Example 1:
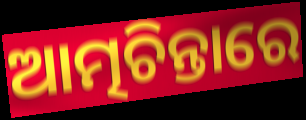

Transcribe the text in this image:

ଆତ୍ମଚିନ୍ତାରେ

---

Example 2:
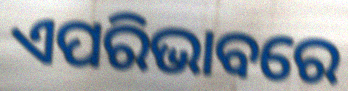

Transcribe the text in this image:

ଏପରିଭାବରେ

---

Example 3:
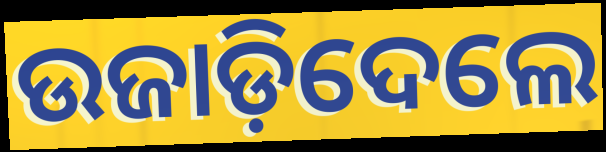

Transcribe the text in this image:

ଉଜାଡ଼ିଦେଲେ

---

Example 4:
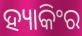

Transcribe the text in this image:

ହ୍ୟାକିଂର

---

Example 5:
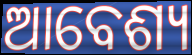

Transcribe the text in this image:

ଆବେଶ୍ୟ